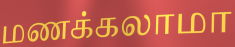
மணக்கலாமா